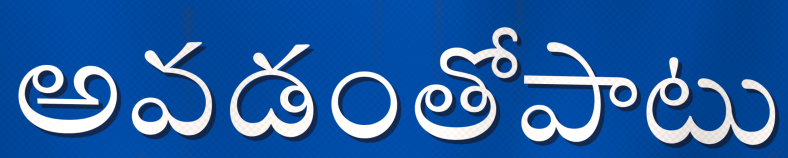
అవడంతోపాటు